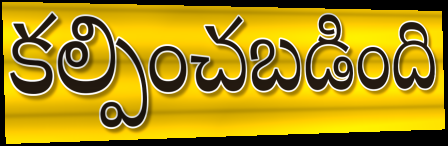
కల్పించబడింది